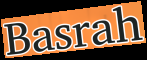
Basrah